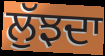
ਲੁੱਝਦਾ